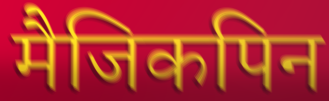
मैजिकपिन